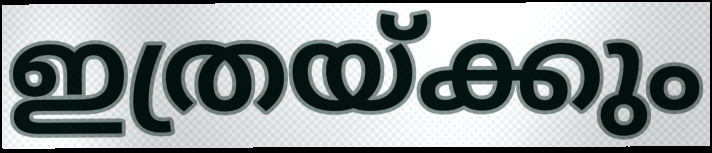
ഇത്രയ്ക്കും